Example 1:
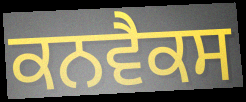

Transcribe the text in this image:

ਕਨਵੈਕਸ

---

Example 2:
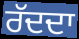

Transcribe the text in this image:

ਰੱਦਦਾ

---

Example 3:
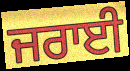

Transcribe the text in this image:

ਜਰਾਈ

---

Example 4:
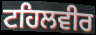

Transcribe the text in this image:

ਟਹਿਲਵੀਰ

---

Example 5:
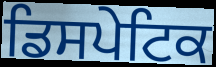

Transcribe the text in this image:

ਡਿਸਪੇਟਿਕ